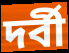
দর্বী